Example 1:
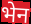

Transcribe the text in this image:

भेन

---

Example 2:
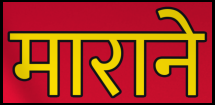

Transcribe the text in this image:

माराने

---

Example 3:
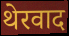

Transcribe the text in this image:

थेरवाद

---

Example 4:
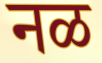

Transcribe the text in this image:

नळ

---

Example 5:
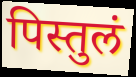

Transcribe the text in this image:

पिस्तुलं